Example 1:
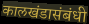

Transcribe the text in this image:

कालखंडासंबंधी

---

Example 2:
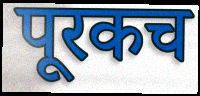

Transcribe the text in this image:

पूरकच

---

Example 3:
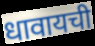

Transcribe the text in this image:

धावायची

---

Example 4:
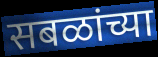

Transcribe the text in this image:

सबळांच्या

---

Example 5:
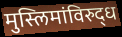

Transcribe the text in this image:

मुस्लिमांविरुद्ध